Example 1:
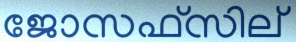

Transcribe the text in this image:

ജോസഫ്സില്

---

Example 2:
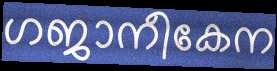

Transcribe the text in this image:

ഗജാനീകേന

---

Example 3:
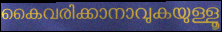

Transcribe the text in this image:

കൈവരിക്കാനാവുകയുള്ളൂ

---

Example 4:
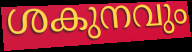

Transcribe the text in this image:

ശകുനവും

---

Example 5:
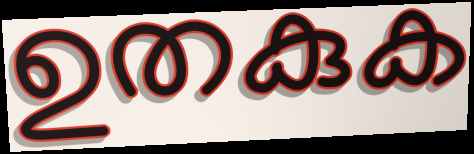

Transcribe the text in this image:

ഉതകുക